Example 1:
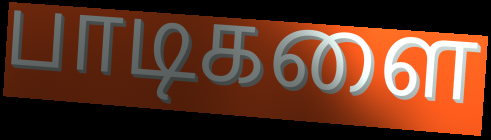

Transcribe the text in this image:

பாடிகளை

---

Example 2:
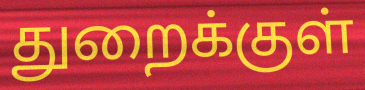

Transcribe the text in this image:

துறைக்குள்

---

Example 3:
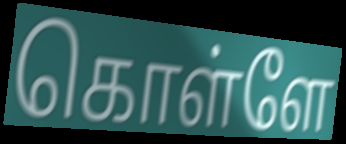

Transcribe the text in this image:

கொள்ளே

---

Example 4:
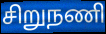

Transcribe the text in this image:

சிறுநணி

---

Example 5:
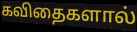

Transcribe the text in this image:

கவிதைகளால்